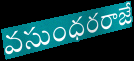
వసుంధరరాజే